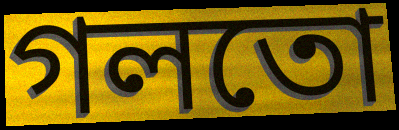
গলতো